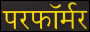
परफॉर्मर